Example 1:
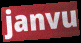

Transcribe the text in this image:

janvu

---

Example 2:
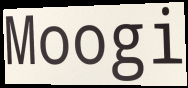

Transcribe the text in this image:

Moogi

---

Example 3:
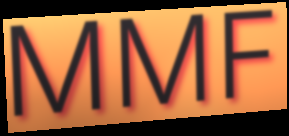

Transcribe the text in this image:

MMF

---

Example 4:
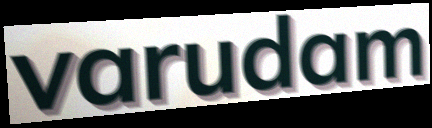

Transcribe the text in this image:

varudam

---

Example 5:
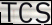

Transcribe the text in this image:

TCS